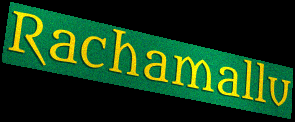
Rachamallu